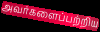
அவர்களைப்பற்றிய